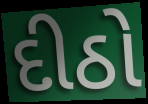
દીઠો